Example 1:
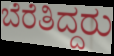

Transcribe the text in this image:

ಬೆರೆತಿದ್ದರು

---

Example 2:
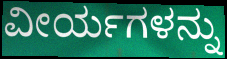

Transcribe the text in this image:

ವೀರ್ಯಗಳನ್ನು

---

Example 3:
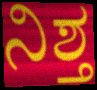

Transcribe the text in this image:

ನಿಶ್ತ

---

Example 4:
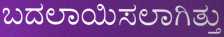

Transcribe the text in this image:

ಬದಲಾಯಿಸಲಾಗಿತ್ತು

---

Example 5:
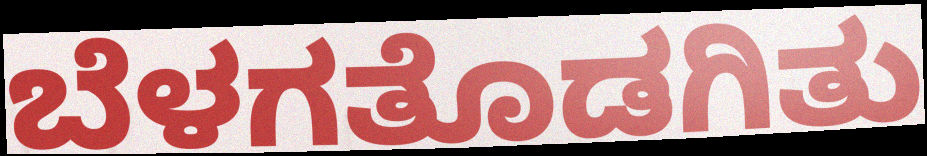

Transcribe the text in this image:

ಬೆಳಗತೊಡಗಿತು